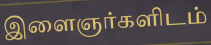
இளைஞர்களிடம்